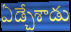
ఏడ్చేశాడు